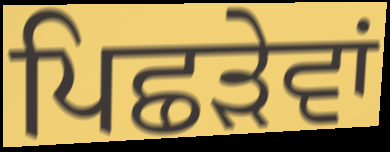
ਪਿਛੜੇਵਾਂ